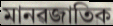
মানৱজাতিক